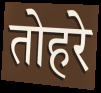
तोहरे